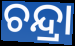
ଚନ୍ଦ୍ରା